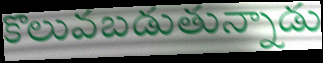
కొలువబడుతున్నాడు